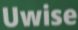
Uwise